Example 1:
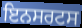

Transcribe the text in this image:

ਇਨਸਰਟਸ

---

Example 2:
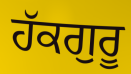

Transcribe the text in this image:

ਹੱਕਗੁਰੂ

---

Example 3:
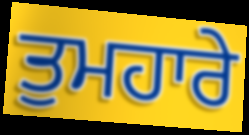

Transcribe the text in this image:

ਤੁਮਹਾਰੇ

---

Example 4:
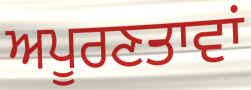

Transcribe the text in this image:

ਅਪੂਰਣਤਾਵਾਂ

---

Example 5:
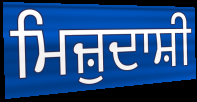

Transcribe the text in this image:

ਮਿਜ਼ੁਦਾਸ਼ੀ